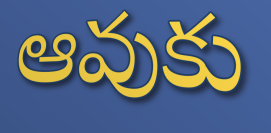
ఆవుకు